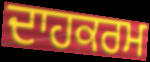
ਦਾਹਕਰਮ